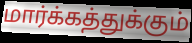
மார்க்கத்துக்கும்